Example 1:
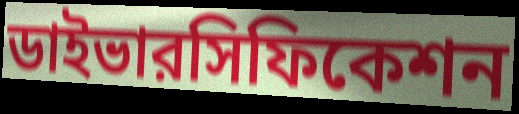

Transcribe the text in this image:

ডাইভারসিফিকেশন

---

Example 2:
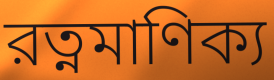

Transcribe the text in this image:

রত্নমাণিক্য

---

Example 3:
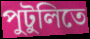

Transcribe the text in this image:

পুটুলিতে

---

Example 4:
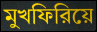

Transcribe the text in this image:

মুখফিরিয়ে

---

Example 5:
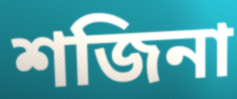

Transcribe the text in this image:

শজিনা